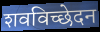
शवविच्छेदन